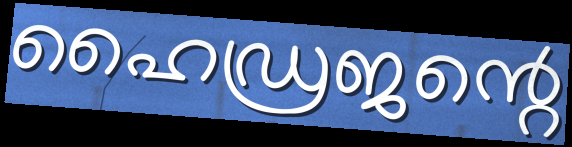
ഹൈഡ്രജന്റെ